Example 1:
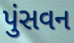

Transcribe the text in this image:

પુંસવન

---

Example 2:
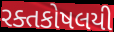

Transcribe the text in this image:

રક્તકોષલયી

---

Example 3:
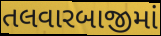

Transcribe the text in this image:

તલવારબાજીમાં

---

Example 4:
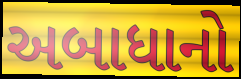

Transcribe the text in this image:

અબાધાનો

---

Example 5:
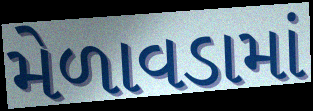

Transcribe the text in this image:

મેળાવડામાં